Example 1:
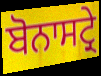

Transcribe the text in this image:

ਬੋਨਾਸਟ੍ਰੇ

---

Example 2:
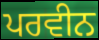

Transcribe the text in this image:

ਪਰਵੀਨ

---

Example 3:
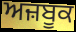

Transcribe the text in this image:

ਅਜ਼ਬੂਕ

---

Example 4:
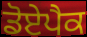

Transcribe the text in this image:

ਡੋਏਪੈਕ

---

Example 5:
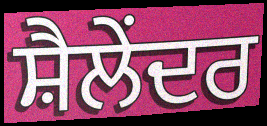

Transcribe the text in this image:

ਸ਼ੈਲੇਂਦਰ